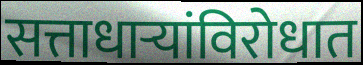
सत्ताधाऱ्यांविरोधात